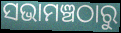
ସଭାମଞ୍ଚଠାରୁ